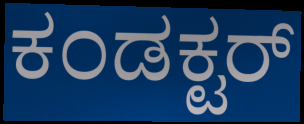
ಕಂಡಕ್ಟರ್